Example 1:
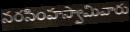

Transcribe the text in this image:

నరసింహస్వామివారు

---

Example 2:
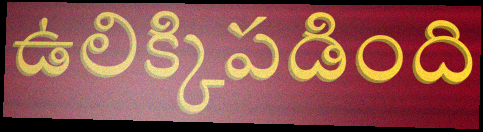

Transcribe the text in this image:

ఉలిక్కిపడింది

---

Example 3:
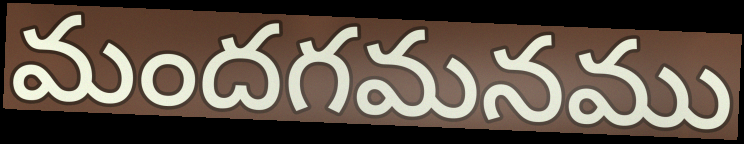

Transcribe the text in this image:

మందగమనము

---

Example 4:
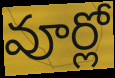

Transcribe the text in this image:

వూర్లో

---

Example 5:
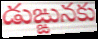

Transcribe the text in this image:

డుఙ్ఙునకు